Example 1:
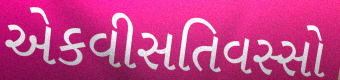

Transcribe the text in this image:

એકવીસતિવસ્સો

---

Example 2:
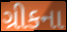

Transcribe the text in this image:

ગ્રીકના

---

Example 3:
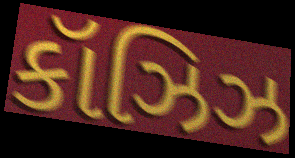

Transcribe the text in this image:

કૉઝિઝ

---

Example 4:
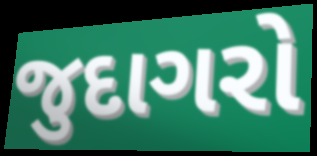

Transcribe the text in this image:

જુદાગરો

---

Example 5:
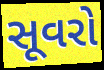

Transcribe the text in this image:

સૂવરો